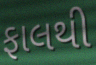
ફાલથી